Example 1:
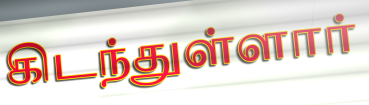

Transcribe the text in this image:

கிடந்துள்ளார்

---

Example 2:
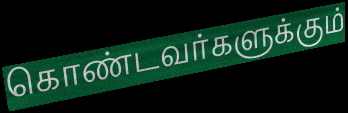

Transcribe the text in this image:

கொண்டவர்களுக்கும்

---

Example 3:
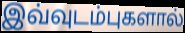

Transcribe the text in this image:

இவ்வுடம்புகளால்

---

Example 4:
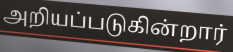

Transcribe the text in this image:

அறியப்படுகின்றார்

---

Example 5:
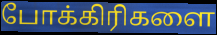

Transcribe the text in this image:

போக்கிரிகளை